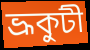
ভ্রূকুটী